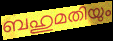
ബഹുമതിയും